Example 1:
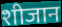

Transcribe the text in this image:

शीजान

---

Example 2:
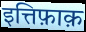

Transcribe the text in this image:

इत्तिफ़ाक़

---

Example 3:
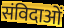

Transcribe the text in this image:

संविदाओं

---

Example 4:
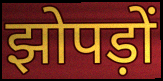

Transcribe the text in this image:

झोपड़ों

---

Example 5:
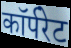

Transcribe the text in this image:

कॉर्परेट